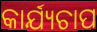
କାର୍ଯ୍ୟଚାପ